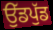
ਉੱਡਪੁੱਡ